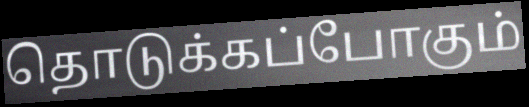
தொடுக்கப்போகும்